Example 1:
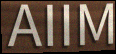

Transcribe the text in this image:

AIIM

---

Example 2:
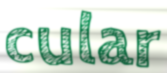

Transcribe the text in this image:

cular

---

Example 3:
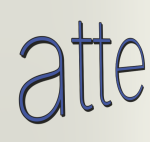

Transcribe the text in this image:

atte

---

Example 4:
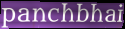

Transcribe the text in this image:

panchbhai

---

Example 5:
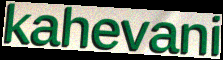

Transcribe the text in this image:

kahevani